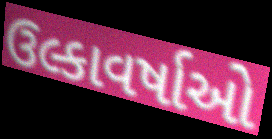
ઉલ્કાવર્ષાઓ